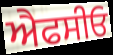
ਐਫਸੀਓ